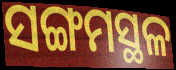
ସଙ୍ଗମସ୍ଥଳ